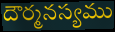
దౌర్మనస్యము